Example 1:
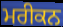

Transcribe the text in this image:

ਮਰੀਕਨ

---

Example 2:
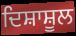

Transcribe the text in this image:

ਦਿਸ਼ਾਸ਼ੂਲ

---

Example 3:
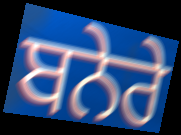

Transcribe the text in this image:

ਬਨੇਰੇ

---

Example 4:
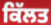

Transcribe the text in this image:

ਕਿੱਲਤ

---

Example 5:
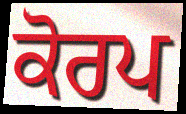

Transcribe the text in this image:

ਕੋਰਪ